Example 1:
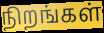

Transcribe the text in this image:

நிறங்கள்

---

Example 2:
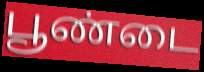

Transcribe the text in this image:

பூண்டை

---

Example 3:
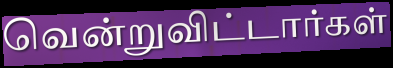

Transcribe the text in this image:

வென்றுவிட்டார்கள்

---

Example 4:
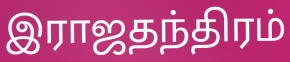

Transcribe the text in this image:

இராஜதந்திரம்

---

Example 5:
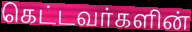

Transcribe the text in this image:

கெட்டவர்களின்